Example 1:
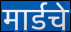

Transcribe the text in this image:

मार्डचे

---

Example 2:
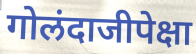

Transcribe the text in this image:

गोलंदाजीपेक्षा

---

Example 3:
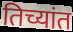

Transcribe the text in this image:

तिच्यांत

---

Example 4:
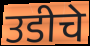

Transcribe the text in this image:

उडीचे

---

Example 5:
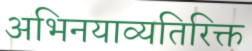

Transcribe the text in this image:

अभिनयाव्यतिरिक्त